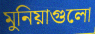
মুনিয়াগুলো